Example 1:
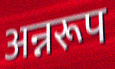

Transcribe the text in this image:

अन्नरूप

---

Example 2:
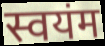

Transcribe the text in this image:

स्वयंम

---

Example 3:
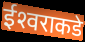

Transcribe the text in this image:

ईश्वराकडे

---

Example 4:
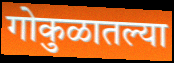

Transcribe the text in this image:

गोकुळातल्या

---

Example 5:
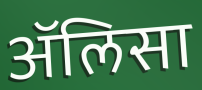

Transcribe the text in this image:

ॲलिसा